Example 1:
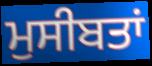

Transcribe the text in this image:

ਮੁਸੀਬਤਾਂ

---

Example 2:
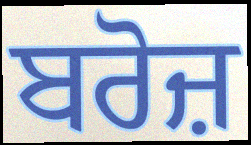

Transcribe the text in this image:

ਬਰੋਜ਼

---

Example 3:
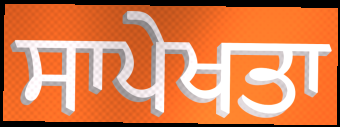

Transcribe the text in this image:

ਸਾਪੇਖਤਾ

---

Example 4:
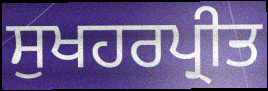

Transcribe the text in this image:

ਸੁਖਹਰਪ੍ਰੀਤ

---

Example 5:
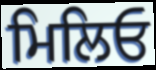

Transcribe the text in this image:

ਮਿਲਿਓ